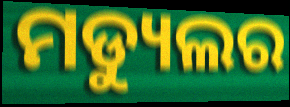
ମଡ୍ୟୁଲର